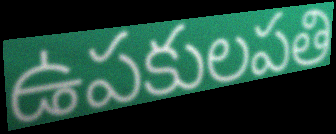
ఉపకులపతి